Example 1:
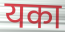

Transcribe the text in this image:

यका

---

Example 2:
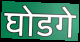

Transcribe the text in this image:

घोडगे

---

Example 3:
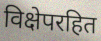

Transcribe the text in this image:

विक्षेपरहित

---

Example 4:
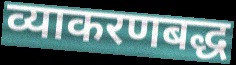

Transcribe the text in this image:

व्याकरणबद्ध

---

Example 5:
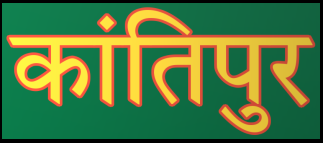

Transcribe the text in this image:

कांतिपुर